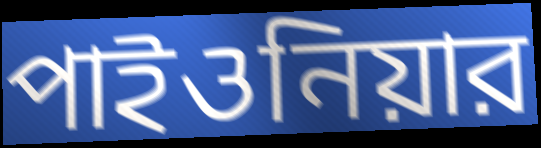
পাইওনিয়ার